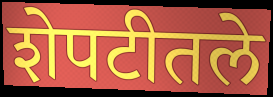
शेपटीतले